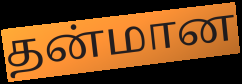
தன்மான